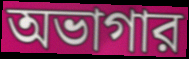
অভাগার